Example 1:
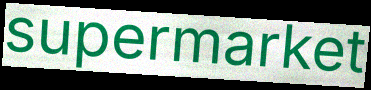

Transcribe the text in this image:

supermarket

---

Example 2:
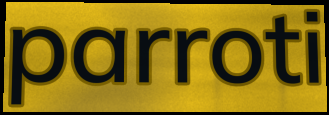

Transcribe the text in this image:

parroti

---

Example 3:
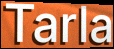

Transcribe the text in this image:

Tarla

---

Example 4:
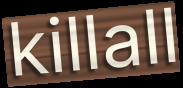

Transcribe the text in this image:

killall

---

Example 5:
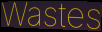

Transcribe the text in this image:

Wastes